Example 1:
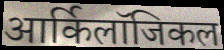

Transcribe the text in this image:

आर्किलॉजिकल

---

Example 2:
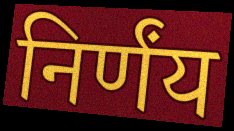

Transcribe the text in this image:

निर्णंय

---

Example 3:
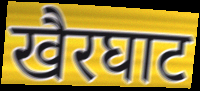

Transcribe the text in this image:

खैरघाट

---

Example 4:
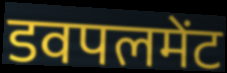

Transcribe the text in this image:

डवपलमेंट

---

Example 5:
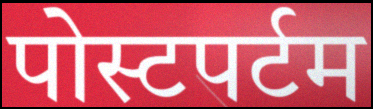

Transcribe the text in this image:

पोस्टपर्टम